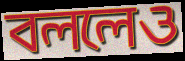
বললেও